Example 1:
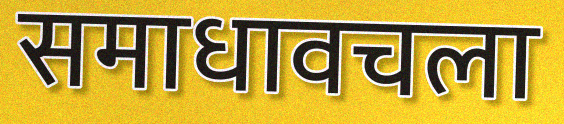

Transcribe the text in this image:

समाधावचला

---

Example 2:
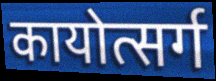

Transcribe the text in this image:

कायोत्सर्ग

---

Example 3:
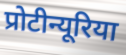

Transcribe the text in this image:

प्रोटीन्यूरिया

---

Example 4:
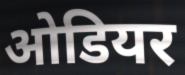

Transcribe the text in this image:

ओडियर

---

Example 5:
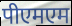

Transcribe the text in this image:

पीएमएम